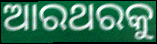
ଆରଥରକୁ